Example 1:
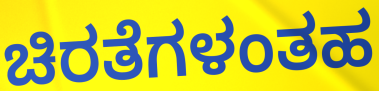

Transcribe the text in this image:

ಚಿರತೆಗಳಂತಹ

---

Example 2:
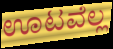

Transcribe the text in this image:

ಊಟವೆಲ್ಲ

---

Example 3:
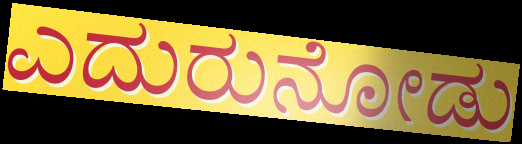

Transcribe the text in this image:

ಎದುರುನೋಡು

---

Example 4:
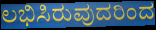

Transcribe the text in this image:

ಲಭಿಸಿರುವುದರಿಂದ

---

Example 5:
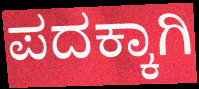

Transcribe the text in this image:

ಪದಕ್ಕಾಗಿ